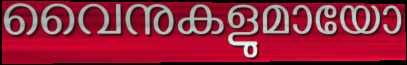
വൈനുകളുമായോ